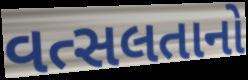
વત્સલતાનો